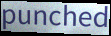
punched